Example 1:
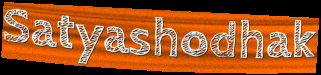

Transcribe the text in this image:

Satyashodhak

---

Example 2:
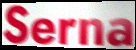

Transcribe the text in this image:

Serna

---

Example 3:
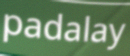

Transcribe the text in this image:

padalay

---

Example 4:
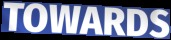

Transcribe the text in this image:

TOWARDS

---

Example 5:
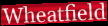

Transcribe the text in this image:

Wheatfield